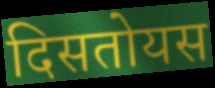
दिसतोयस